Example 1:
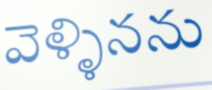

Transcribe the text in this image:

వెళ్ళినను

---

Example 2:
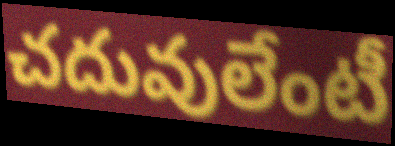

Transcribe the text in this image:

చదువులేంటీ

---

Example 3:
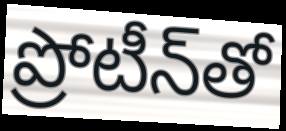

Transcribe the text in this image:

ప్రోటీన్‌తో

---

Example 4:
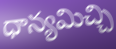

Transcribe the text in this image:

ధాన్యమిచ్చి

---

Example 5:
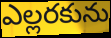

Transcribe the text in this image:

ఎల్లరకును